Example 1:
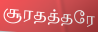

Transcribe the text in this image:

சூரதத்தரே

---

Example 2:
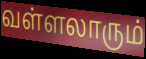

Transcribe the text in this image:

வள்ளலாரும்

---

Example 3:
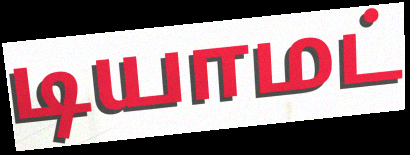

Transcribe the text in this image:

டியாமட்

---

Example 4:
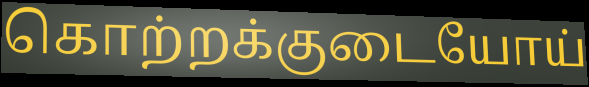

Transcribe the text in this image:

கொற்றக்குடையோய்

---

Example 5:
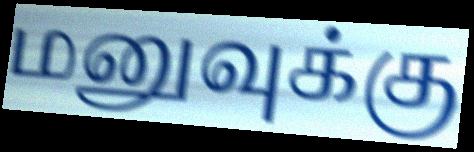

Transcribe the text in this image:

மனுவுக்கு